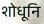
शोधूनि